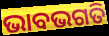
ଭାବଭଗତି